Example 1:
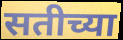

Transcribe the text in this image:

सतीच्या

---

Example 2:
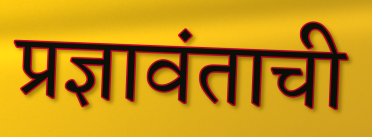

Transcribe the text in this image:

प्रज्ञावंताची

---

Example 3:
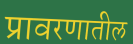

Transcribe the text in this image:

प्रावरणातील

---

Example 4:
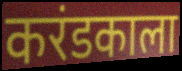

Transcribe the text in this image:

करंडकाला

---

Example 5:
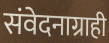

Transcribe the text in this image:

संवेदनाग्राही